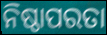
ନିଷ୍ଠାପରତା